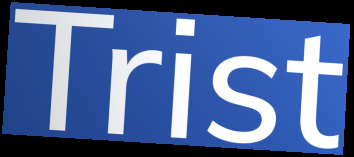
Trist